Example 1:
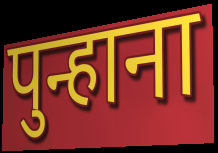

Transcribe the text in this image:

पुन्हाना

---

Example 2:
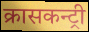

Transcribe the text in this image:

क्रासकन्ट्री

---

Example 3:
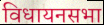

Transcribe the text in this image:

विधायनसभा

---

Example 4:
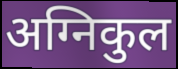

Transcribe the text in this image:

अग्निकुल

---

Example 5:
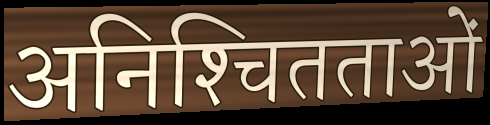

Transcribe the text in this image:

अनिश्‍चितताओं